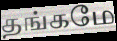
தங்கமே